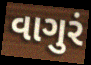
વાગુરં